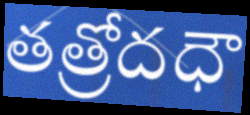
తత్రోదధౌ